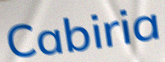
Cabiria